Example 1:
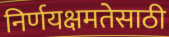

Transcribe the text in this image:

निर्णयक्षमतेसाठी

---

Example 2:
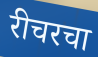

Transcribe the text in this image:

रीचरचा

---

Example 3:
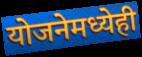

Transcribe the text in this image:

योजनेमध्येही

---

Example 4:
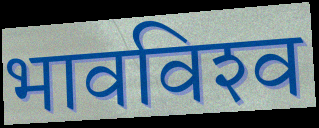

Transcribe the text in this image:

भावविश्व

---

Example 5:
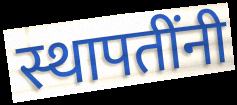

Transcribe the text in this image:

स्थापतींनी